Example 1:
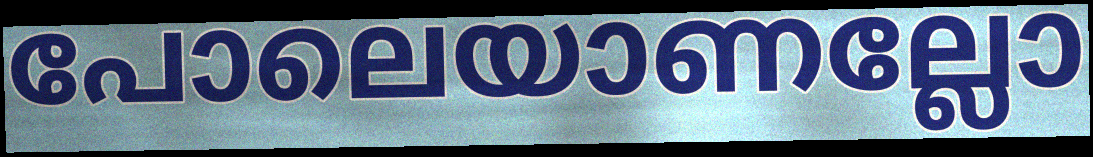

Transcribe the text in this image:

പോലെയാണല്ലോ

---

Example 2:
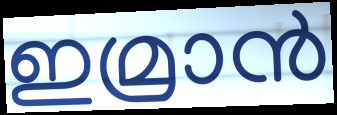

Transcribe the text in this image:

ഇമ്രാൻ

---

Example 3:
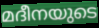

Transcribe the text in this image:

മദീനയുടെ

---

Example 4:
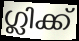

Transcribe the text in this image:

ഗ്ലിക്ക്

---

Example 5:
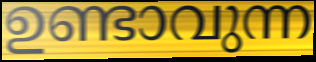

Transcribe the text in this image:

ഉണ്ടാവുന്ന